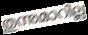
തുന്നുമാറില്ല